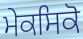
ਮੇਕਸਿਕੋ